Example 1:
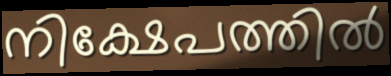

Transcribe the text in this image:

നിക്ഷേപത്തിൽ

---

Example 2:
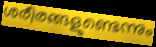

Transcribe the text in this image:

ശരീരങ്ങളുണ്ടെന്നും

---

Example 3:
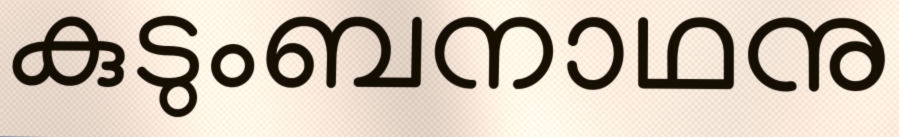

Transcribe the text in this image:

കുടുംബനാഥനു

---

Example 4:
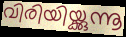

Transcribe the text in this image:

വിരിയിയ്ക്കുന്നൂ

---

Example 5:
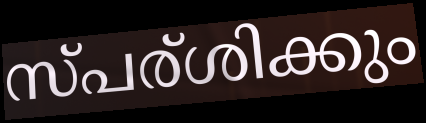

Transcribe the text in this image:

സ്പര്ശിക്കും